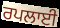
ਰਪਲਾਈ